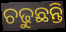
ଚଢୁଛନ୍ତି